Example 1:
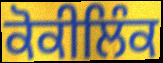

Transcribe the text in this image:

ਕੋਕੀਲਿੰਕ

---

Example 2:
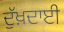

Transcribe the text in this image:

ਦੁੱਖ਼ਦਾਈ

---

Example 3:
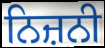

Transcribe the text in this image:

ਨਿਜ਼ਨੀ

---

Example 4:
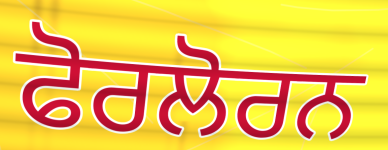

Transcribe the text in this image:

ਫੋਰਲੋਰਨ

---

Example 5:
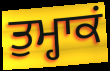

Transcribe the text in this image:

ਤੁਮ੍ਹਾਕਂ